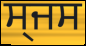
ਸ੍ਜਸ